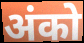
अंको